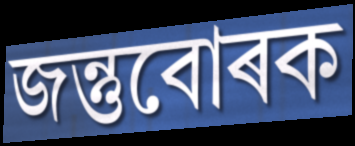
জন্তুবোৰক